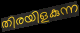
തിരയിളകുന്ന